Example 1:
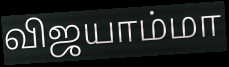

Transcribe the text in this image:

விஜயாம்மா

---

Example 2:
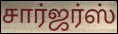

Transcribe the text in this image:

சார்ஜர்ஸ்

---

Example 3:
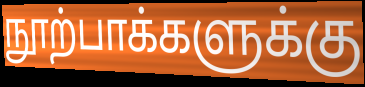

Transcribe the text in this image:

நூற்பாக்களுக்கு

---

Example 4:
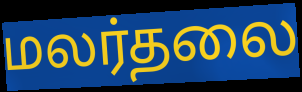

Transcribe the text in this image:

மலர்தலை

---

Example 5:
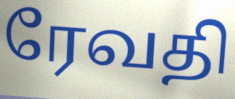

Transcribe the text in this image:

ரேவதி